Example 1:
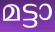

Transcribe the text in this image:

മട്ടാ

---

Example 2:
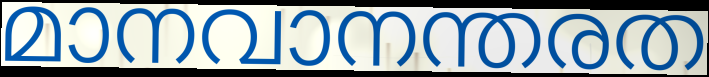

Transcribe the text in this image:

മാനവാനന്തരത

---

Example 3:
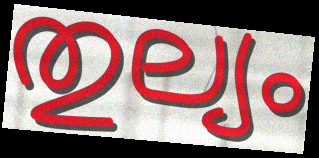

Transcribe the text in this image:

തുല്യം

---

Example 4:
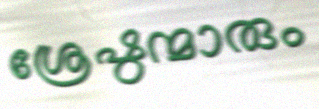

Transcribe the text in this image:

ശ്രേഷ്ഠന്മാരും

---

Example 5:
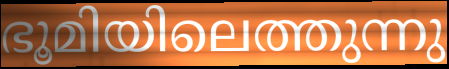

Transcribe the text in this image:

ഭൂമിയിലെത്തുന്നു